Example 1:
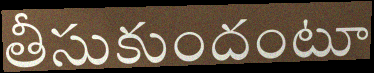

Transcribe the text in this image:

తీసుకుందంటూ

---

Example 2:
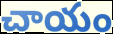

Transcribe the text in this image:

చాయం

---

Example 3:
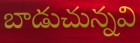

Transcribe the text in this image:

బాడుచున్నవి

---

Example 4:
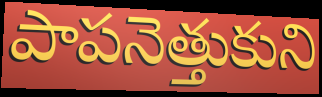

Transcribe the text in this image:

పాపనెత్తుకుని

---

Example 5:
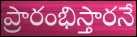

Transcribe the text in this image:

ప్రారంభిస్తారనే